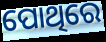
ପୋଥିରେ